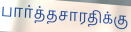
பார்த்தசாரதிக்கு